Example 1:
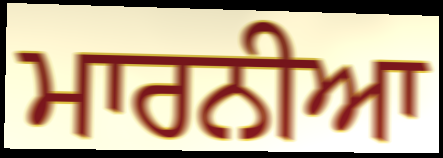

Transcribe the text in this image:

ਮਾਰਨੀਆ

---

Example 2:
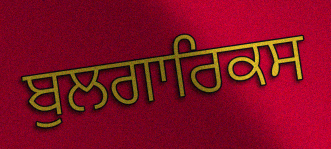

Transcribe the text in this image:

ਬੁਲਗਾਰਿਕਸ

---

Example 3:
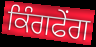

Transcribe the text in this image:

ਕਿੰਗਫੇਂਗ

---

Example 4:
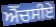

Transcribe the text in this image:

ਐੱਚਸੀਏ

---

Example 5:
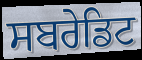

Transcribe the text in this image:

ਸਬਰੇਡਿਟ